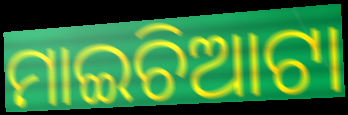
ମାଇଚିଆଟା